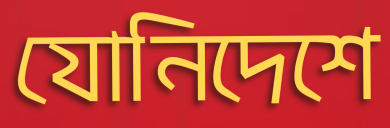
যোনিদেশে